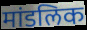
मांडलिक